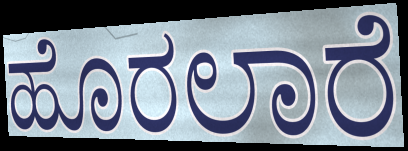
ಹೊರಲಾರೆ